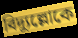
বিদ্যুল্লোকে